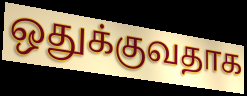
ஒதுக்குவதாக